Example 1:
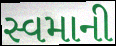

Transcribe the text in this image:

સ્વમાની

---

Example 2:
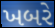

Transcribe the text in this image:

ખબરે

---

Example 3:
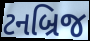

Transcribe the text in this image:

ટનબ્રિજ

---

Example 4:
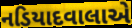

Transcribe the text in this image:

નડિયાદવાલાએ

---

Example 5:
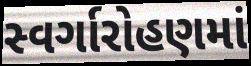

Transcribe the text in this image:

સ્વર્ગારોહણમાં